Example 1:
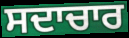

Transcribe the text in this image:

ਸਦਾਚਾਰ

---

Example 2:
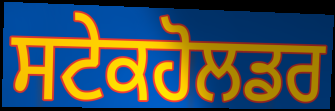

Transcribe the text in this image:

ਸਟੇਕਹੋਲਡਰ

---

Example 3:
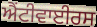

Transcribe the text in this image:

ਐਂਟੀਵਾਈਰਸ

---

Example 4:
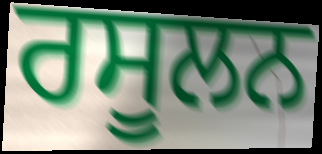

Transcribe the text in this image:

ਰਸੂਲਨ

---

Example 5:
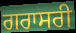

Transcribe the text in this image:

ਗਰਾਸਰੀ